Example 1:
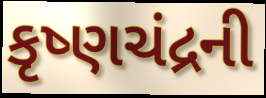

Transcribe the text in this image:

કૃષ્ણચંદ્રની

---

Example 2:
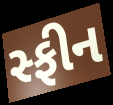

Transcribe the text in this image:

સ્ફીન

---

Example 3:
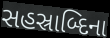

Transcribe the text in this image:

સહસ્રાબ્દિના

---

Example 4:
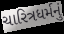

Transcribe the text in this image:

ચારિત્રધર્મનું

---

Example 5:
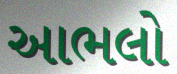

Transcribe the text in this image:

આભલો